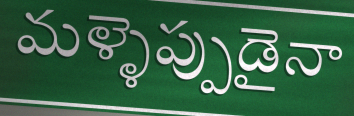
మళ్ళెప్పుడైనా